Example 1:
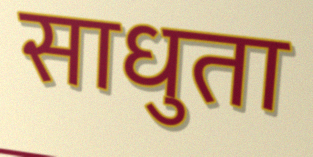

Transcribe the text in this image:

साधुता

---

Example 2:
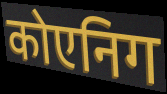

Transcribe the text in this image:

कोएनिग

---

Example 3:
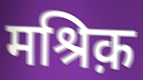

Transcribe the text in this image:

मश्रिक़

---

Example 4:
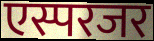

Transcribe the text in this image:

एस्परजर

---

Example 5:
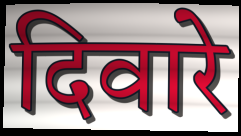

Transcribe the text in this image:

दिवारे